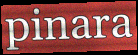
pinara